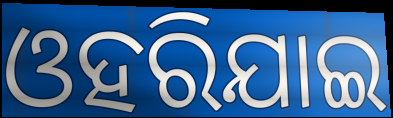
ଓହରିଯାଇ